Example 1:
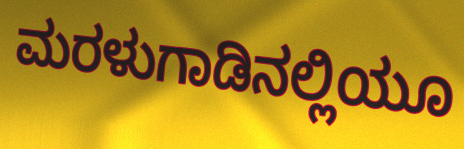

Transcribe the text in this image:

ಮರಳುಗಾಡಿನಲ್ಲಿಯೂ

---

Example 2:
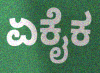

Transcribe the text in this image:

ಏಕೈಕ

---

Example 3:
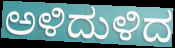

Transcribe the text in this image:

ಅಳಿದುಳಿದ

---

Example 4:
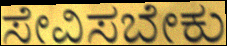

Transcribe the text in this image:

ಸೇವಿಸಬೇಕು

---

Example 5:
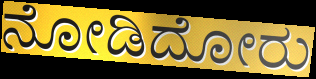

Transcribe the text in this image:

ನೋಡಿದೋರು